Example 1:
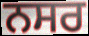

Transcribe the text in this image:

ਨਸਰ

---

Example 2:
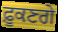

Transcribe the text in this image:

ਫ਼ੂਕਣਗੇ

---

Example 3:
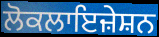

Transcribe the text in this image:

ਲੋਕਲਾਇਜ਼ੇਸ਼ਨ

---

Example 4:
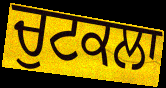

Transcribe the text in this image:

ਚੁਟਕਲਾ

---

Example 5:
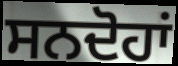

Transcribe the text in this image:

ਸਨਦੋਹਾਂ